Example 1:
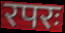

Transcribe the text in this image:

रपरः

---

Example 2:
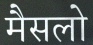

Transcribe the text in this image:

मैसलो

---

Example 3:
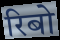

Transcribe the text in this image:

रिबो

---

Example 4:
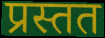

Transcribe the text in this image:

प्रस्तत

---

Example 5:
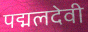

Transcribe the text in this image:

पद्मलदेवी